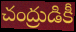
చంద్రుడికీ